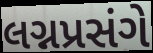
લગ્નપ્રસંગે